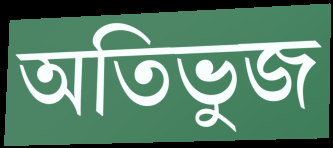
অতিভুজ